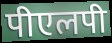
पीएलपी